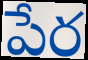
పేర